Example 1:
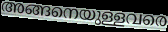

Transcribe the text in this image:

അങ്ങനെയുള്ളവരെ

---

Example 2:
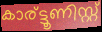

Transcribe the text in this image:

കാര്ട്ടൂണിസ്റ്റ്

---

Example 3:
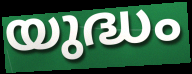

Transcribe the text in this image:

യുദ്ധം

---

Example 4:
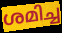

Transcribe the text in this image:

ശമിച്ച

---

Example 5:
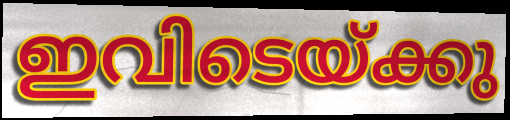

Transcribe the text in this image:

ഇവിടെയ്ക്കു